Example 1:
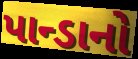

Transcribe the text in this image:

પાન્ડાનો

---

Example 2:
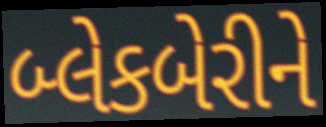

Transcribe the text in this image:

બ્લેકબેરીને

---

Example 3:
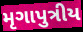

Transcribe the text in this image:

મૃગાપુત્રીય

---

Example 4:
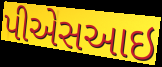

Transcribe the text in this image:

પીએસઆઇ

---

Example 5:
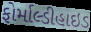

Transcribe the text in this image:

ફોર્માલ્ડીહાઇડ